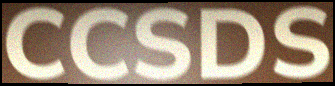
CCSDS